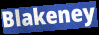
Blakeney